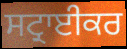
ਸਟ੍ਰਾਈਕਰ